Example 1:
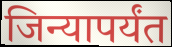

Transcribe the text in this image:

जिन्यापर्यंत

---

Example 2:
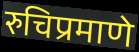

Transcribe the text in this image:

रुचिप्रमाणे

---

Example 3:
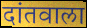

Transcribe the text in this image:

दांतवाला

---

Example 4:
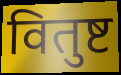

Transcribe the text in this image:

वितुष्ट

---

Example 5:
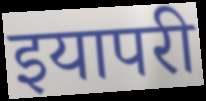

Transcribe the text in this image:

इयापरी